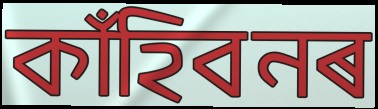
কাঁহিবনৰ